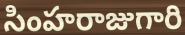
సింహరాజుగారి